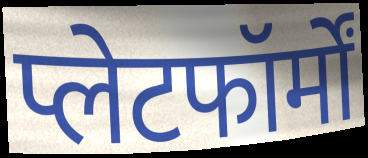
प्लेटफॉर्मों